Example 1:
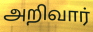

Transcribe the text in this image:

அறிவார்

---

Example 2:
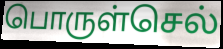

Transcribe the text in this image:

பொருள்செல்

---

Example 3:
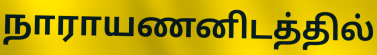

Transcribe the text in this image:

நாராயணனிடத்தில்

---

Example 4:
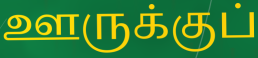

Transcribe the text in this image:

ஊருக்குப்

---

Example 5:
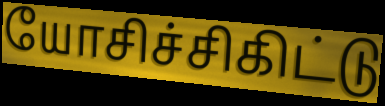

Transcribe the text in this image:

யோசிச்சிகிட்டு